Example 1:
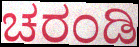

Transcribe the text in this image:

ಚರಂಡಿ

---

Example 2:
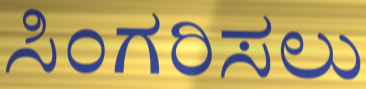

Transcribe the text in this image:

ಸಿಂಗರಿಸಲು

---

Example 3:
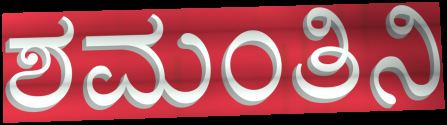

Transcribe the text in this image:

ಶಮಂತಿನಿ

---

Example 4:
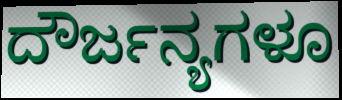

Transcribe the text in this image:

ದೌರ್ಜನ್ಯಗಳೂ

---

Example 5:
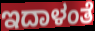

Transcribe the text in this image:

ಇದಾಳಂತೆ